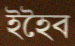
ইহৈব